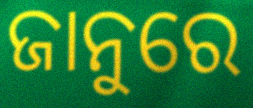
ଜାନୁରେ